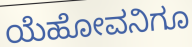
ಯೆಹೋವನಿಗೂ